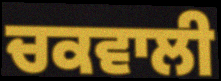
ਚਕਵਾਲੀ